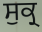
ਸੁਕ੍ਰ